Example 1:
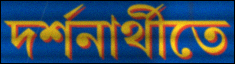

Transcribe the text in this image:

দর্শনার্থীতে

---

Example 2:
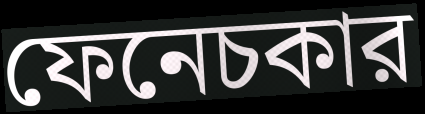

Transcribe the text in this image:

ফেনেচকার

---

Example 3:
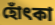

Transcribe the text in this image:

হোঁৎকা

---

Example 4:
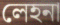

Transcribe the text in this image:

লেহনা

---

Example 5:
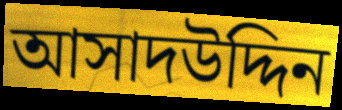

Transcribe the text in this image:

আসাদউদ্দিন